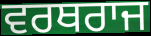
ਵਰਥਰਾਜ